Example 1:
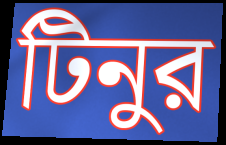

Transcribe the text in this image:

টিনুর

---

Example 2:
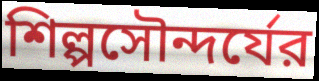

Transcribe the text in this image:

শিল্পসৌন্দর্যের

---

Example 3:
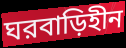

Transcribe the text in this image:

ঘরবাড়িহীন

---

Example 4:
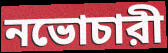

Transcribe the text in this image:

নভোচারী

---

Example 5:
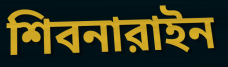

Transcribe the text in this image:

শিবনারাইন